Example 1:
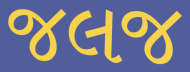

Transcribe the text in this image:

જલજ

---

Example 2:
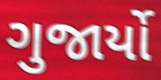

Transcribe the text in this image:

ગુજાર્યો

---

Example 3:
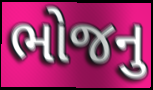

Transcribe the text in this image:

ભોજનુ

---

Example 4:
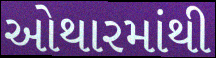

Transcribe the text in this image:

ઓથારમાંથી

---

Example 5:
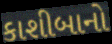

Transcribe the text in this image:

કાશીબાનો